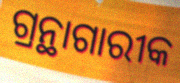
ଗ୍ରନ୍ଥାଗାରୀକ